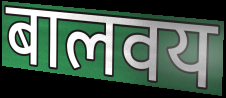
बालवय